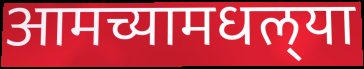
आमच्यामधल्या